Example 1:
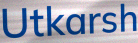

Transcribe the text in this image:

Utkarsh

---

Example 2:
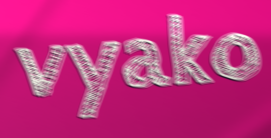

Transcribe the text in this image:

vyako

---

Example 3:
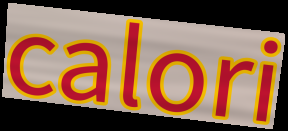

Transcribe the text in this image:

calori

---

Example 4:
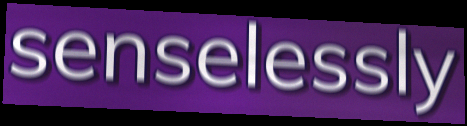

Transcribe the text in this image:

senselessly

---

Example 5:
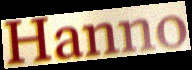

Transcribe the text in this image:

Hanno